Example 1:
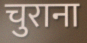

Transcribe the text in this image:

चुराना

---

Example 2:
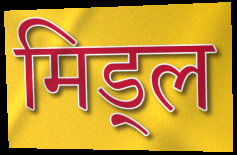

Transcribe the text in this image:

मिड्ल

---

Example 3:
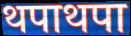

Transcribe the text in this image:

थपाथपा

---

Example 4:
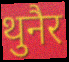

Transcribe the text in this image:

थुनैर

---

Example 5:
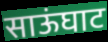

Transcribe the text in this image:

साऊंघाट